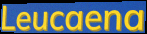
Leucaena